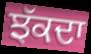
ਝੱਕਦਾ